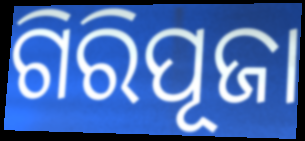
ଗିରିପୂଜା